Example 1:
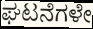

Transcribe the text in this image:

ಘಟನೆಗಳೇ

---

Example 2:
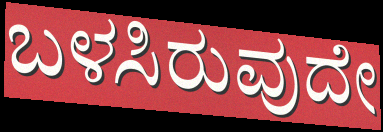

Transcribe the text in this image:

ಬಳಸಿರುವುದೇ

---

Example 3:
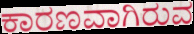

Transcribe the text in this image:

ಕಾರಣವಾಗಿರುವ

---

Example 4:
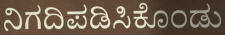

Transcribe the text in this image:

ನಿಗದಿಪಡಿಸಿಕೊಂಡು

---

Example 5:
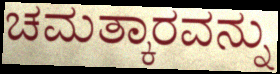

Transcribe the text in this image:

ಚಮತ್ಕಾರವನ್ನು